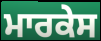
ਮਾਰਕੇਸ